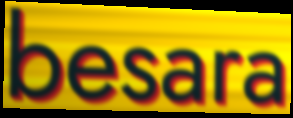
besara